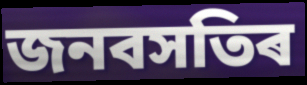
জনবসতিৰ